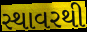
સ્થાવરથી